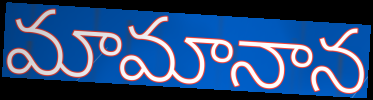
మామానాన